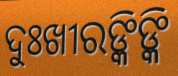
ଦୁଃଖୀରଙ୍କିଙ୍କି